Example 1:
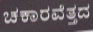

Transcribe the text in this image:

ಚಕಾರವೆತ್ತದ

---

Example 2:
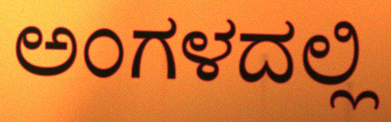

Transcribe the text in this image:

ಅಂಗಳದಲ್ಲಿ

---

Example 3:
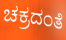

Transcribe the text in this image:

ಚಕ್ರದಂತೆ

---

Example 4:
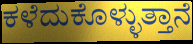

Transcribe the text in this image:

ಕಳೆದುಕೊಳ್ಳುತ್ತಾನೆ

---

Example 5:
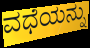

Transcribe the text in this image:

ವಧೆಯನ್ನು